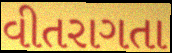
વીતરાગતા